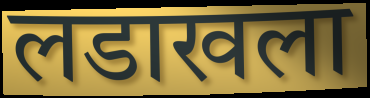
लडाखला